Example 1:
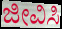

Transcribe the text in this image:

ಜೀವಿಸಿ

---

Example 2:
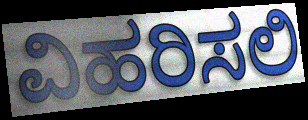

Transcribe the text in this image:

ವಿಹರಿಸಲಿ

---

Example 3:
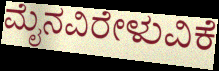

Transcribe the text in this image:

ಮೈನವಿರೇಳುವಿಕೆ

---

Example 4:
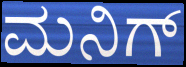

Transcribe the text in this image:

ಮನಿಗ್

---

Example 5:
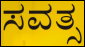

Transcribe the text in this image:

ಸವತ್ಸ